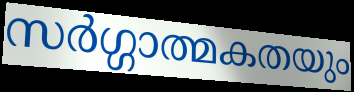
സർഗ്ഗാത്മകതയും